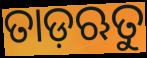
ତାଡ଼ଋତୁ